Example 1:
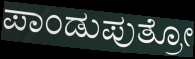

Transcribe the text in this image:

ಪಾಂಡುಪುತ್ರೋ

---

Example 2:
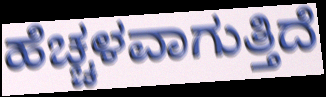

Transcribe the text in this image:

ಹೆಚ್ಚಳವಾಗುತ್ತಿದೆ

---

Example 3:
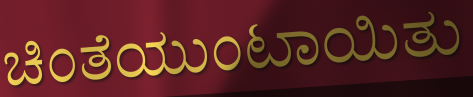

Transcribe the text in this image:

ಚಿಂತೆಯುಂಟಾಯಿತು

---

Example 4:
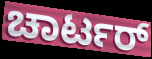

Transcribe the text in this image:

ಚಾರ್ಟರ್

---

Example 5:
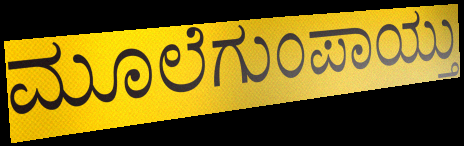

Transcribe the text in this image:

ಮೂಲೆಗುಂಪಾಯ್ತು